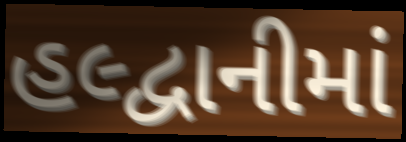
હલ્દ્વાનીમાં